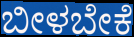
ಬೀಳಬೇಕೆ